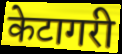
केटागरी